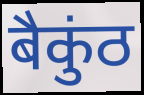
बैकुंठ